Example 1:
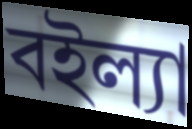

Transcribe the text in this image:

বইল্যা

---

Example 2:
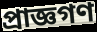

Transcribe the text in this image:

প্রাজ্ঞগণ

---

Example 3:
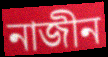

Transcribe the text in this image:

নাজীন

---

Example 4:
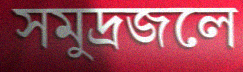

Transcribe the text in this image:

সমুদ্রজলে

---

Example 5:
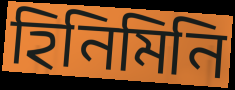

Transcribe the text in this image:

হিনিমিনি